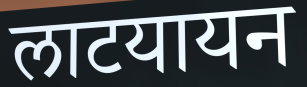
लाटयायन